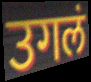
उगलं